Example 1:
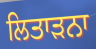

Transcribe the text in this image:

ਲਿਤਾੜਨਾ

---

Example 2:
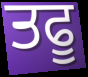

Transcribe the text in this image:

ਤਫੂ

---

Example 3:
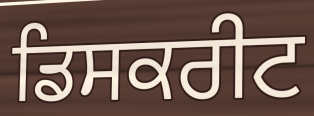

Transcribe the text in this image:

ਡਿਸਕਰੀਟ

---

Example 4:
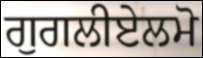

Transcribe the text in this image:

ਗੁਗਲੀਏਲਮੋ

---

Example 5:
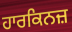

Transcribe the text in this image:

ਹਾਰਕਿਨਜ਼